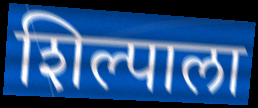
शिल्पाला